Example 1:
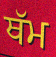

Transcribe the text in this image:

ਥੱਮ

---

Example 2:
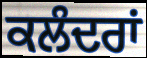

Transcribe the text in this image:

ਕਲੰਦਰਾਂ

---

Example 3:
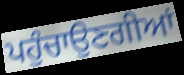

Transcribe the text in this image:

ਪਹੁੰਚਾਉਣਗੀਆਂ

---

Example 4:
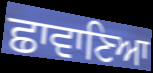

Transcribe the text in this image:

ਛਾਵਾਣਿਆ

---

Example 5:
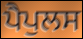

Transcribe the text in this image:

ਪੈਪੁਲਸ